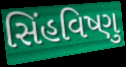
સિંહવિષ્ણુ